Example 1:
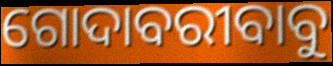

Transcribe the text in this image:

ଗୋଦାବରୀବାବୁ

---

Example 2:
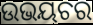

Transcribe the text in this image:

ଉଭୟଚର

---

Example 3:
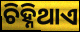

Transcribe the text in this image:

ଚିହ୍ନିଥାଏ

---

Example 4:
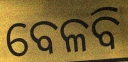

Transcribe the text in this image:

ବେଳବି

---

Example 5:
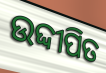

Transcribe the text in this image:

ଉଦ୍ଦୀପିତ